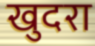
खुदरा